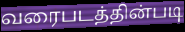
வரைபடத்தின்படி